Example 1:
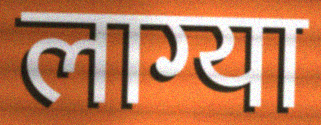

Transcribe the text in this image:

लाग्या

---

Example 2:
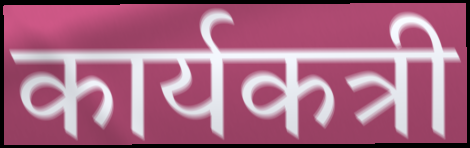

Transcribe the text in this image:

कार्यकत्री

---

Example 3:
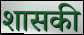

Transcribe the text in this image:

शासकी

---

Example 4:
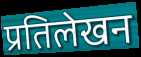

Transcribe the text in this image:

प्रतिलेखन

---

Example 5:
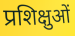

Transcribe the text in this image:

प्रशिक्षुओं